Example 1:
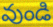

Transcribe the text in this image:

వుండి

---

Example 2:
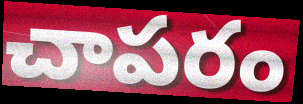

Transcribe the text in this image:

చాపరం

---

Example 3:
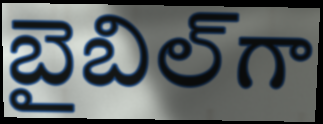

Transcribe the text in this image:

బైబిల్‌గా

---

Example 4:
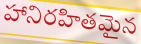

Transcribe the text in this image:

హానిరహితమైన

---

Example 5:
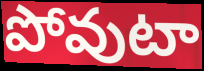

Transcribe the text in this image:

పోవుటా